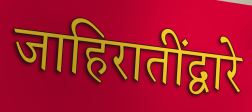
जाहिरातींद्वारे